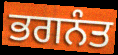
ਭਗਨੰਤ